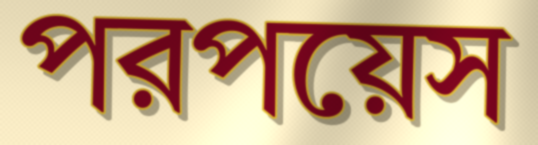
পরপয়েস